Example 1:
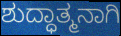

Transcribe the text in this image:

ಶುದ್ಧಾತ್ಮನಾಗಿ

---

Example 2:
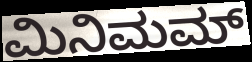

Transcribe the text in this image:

ಮಿನಿಮಮ್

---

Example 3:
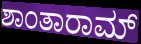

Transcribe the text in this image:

ಶಾಂತಾರಾಮ್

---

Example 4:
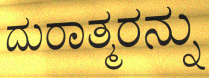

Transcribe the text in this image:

ದುರಾತ್ಮರನ್ನು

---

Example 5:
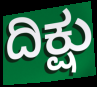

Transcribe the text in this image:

ದಿಕ್ಷು